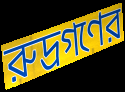
রুদ্রগণের